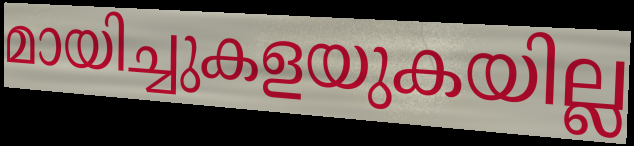
മായിച്ചുകളയുകയില്ല